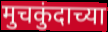
मुचकुंदाच्या